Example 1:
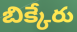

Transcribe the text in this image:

బిక్కేరు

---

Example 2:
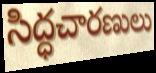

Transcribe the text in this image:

సిద్ధచారణులు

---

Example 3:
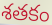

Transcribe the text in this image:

శతకం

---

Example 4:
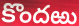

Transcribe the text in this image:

కొందఱు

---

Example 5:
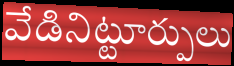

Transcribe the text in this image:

వేడినిట్టూర్పులు